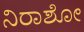
ನಿರಾಶೋ